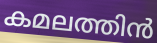
കമലത്തിൻ